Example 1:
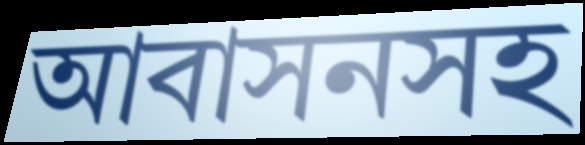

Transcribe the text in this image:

আবাসনসহ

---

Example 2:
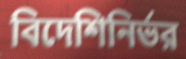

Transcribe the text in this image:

বিদেশিনির্ভর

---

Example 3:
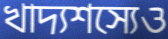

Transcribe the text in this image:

খাদ্যশস্যেও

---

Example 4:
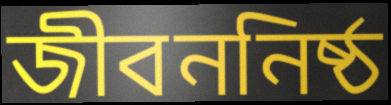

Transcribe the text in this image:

জীবননিষ্ঠ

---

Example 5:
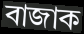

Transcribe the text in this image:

বাজাক